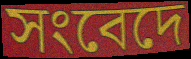
সংবেদে